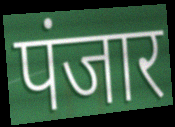
पंजार